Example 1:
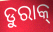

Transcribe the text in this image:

ଡୁରାକ୍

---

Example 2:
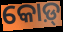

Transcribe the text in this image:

କୋଡ଼୍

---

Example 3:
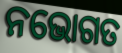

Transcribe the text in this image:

ନଭୋଗତ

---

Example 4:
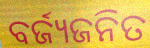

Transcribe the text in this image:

ବର୍ଜ୍ୟଜନିତ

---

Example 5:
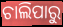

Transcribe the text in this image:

ଚାଲିପାରୁ